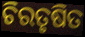
ଚିରତୃଷିତ